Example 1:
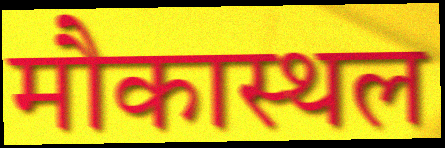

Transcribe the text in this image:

मौकास्थल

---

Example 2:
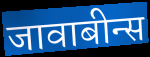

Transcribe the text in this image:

जावाबीन्स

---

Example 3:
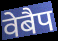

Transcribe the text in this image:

वेबैप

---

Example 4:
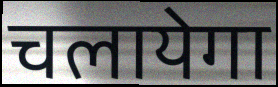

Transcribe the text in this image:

चलायेगा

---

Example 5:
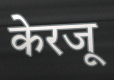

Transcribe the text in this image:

केरजू